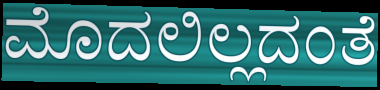
ಮೊದಲಿಲ್ಲದಂತೆ